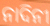
ନାଦିନୀ